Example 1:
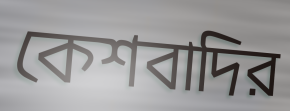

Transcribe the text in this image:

কেশবাদির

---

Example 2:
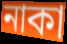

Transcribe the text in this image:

নাকা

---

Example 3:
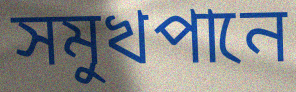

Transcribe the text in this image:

সমুখপানে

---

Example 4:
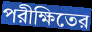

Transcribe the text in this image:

পরীক্ষিতের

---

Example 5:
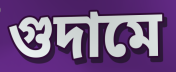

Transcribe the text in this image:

গুদামে